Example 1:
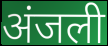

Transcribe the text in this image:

अंजली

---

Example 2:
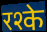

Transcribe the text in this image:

रश्के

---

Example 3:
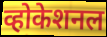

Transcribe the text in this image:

व्होकेशनल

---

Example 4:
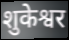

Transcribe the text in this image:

शुकेश्वर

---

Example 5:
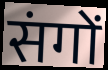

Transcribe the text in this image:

संगों